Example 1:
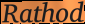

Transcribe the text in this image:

Rathod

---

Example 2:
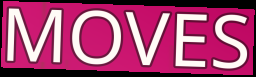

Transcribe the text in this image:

MOVES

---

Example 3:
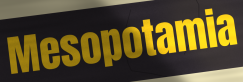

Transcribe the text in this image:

Mesopotamia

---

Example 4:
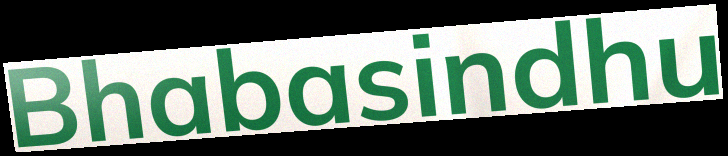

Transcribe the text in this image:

Bhabasindhu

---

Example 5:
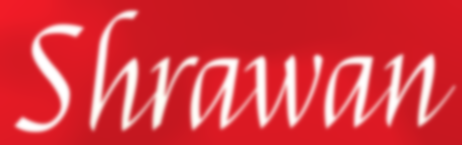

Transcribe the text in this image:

Shrawan